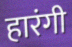
हारंगी